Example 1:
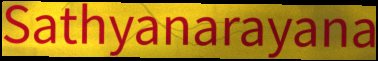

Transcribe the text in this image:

Sathyanarayana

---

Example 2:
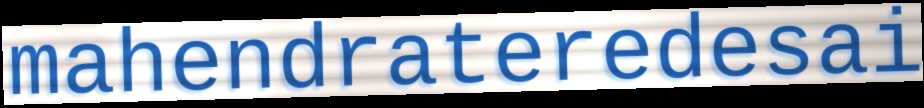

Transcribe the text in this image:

mahendrateredesai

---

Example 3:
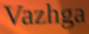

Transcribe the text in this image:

Vazhga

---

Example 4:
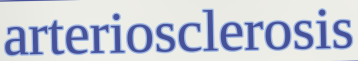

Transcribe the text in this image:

arteriosclerosis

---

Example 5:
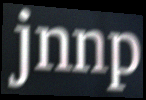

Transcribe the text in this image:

jnnp